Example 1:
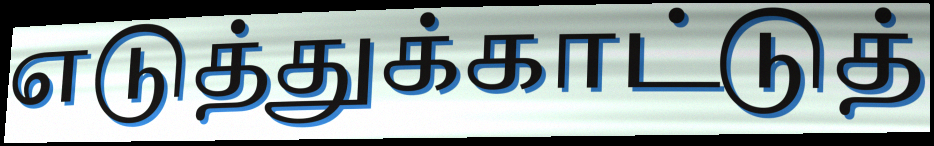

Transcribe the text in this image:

எடுத்துக்காட்டுத்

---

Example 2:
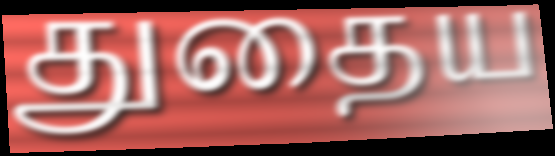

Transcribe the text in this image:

துதைய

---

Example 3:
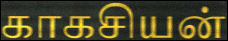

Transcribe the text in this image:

காகசியன்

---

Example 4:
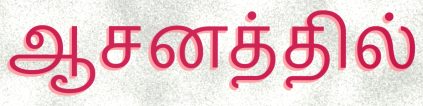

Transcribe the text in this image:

ஆசனத்தில்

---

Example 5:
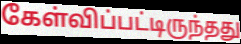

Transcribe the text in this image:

கேள்விப்பட்டிருந்தது